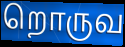
றொருவ